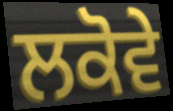
ਲਕੋਵੇ